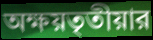
অক্ষয়তৃতীয়ার